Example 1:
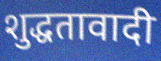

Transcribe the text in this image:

शुद्धतावादी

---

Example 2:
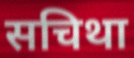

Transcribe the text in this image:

सचिथा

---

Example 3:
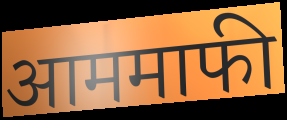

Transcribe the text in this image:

आममाफी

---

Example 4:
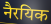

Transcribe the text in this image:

नैरयिक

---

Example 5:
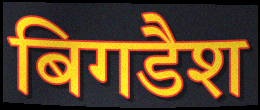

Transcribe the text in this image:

बिगडैश